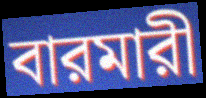
বারমারী